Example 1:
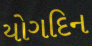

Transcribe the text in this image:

યોગદિન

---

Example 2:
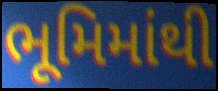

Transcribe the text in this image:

ભૂમિમાંથી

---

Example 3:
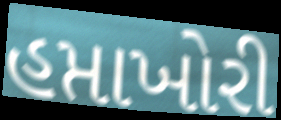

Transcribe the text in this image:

હપ્તાખોરી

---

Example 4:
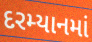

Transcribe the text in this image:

દરમ્યાનમાં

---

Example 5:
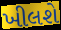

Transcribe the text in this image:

ખીલશે